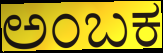
ಅಂಬಕ